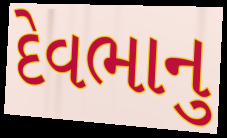
દેવભાનુ